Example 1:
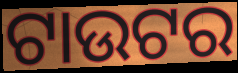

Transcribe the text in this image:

ଟାଉଟର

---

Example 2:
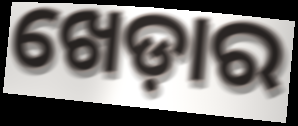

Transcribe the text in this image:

ଖେଡ଼ାର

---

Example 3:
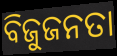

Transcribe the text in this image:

ବିଜୁଜନତା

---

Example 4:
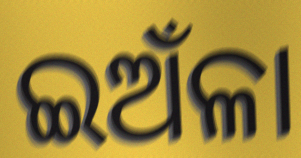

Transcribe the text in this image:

ଇଅଁଳା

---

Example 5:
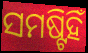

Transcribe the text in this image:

ସମଷ୍ଟିହିଁ